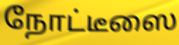
நோட்டீஸை